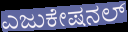
ಎಜುಕೇಷನಲ್